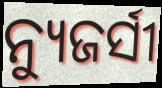
ନ୍ୟୁଜର୍ସୀ